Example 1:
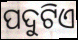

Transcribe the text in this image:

ପଦୁଟିଏ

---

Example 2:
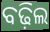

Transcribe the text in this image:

ବଢ଼ିଲ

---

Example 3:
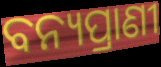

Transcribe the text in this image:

ବନ୍ୟପ୍ରାଣୀ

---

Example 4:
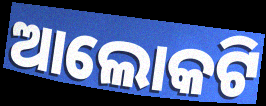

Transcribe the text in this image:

ଆଲୋକଟି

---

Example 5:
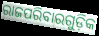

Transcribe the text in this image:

ରାଜପରିବାରଗୁଡ଼ିକ